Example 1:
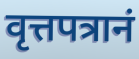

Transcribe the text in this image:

वृत्तपत्रानं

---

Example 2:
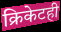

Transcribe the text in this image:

क्रिकेटही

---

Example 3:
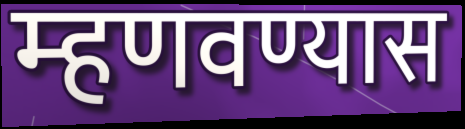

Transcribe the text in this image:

म्हणवण्यास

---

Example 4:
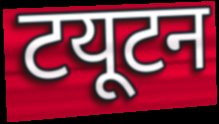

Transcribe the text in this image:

टयूटन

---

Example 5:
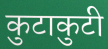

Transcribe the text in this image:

कुटाकुटी